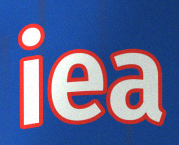
iea